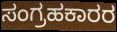
ಸಂಗ್ರಹಕಾರರ